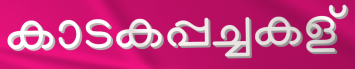
കാടകപ്പച്ചകള്